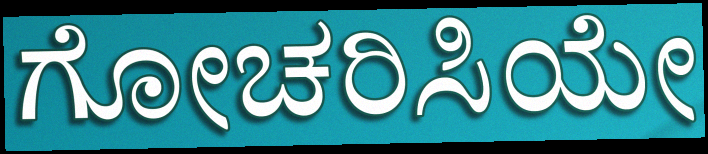
ಗೋಚರಿಸಿಯೇ